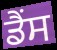
ਡੈਂਸ